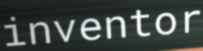
inventor